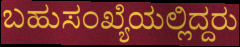
ಬಹುಸಂಖ್ಯೆಯಲ್ಲಿದ್ದರು